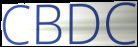
CBDC